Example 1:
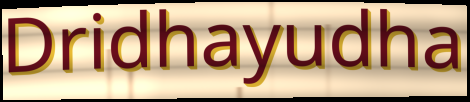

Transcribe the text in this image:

Dridhayudha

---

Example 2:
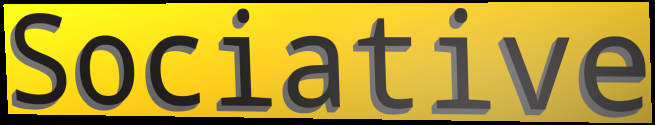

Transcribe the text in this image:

Sociative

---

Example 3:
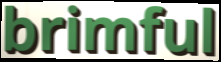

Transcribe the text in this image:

brimful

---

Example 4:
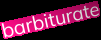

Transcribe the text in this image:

barbiturate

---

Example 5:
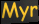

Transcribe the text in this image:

Myr